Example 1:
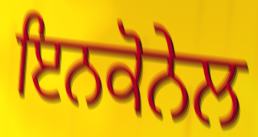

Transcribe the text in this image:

ਇਨਕੋਨੇਲ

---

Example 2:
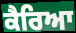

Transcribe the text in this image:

ਕੈਰਿਆ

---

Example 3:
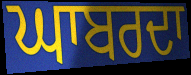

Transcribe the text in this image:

ਘਾਬਰਦਾ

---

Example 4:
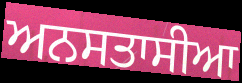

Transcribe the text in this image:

ਅਨਸਤਾਸੀਆ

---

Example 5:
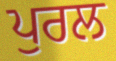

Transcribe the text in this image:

ਪੁਰਲ